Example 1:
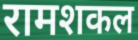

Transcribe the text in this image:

रामशकल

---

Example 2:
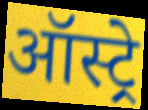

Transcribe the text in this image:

ऑस्ट्रे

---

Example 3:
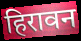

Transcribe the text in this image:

हिरावन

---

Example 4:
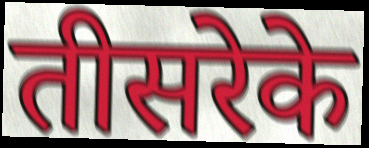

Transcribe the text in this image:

तीसरेके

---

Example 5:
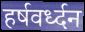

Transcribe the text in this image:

हर्षवर्ध्दन